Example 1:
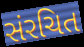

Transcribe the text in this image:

સંરચિત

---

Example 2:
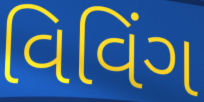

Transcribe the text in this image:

વિવિંગ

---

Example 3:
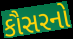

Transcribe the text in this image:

કૌસરનો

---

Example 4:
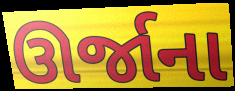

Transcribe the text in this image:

ઊર્જાના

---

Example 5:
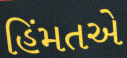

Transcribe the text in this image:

હિંમતએ